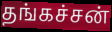
தங்கச்சன்